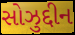
સોઝુદ્દીન